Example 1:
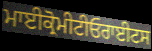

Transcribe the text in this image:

ਮਾਈਕ੍ਰੋਮੀਟੀਓਰਾਈਟਸ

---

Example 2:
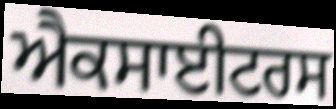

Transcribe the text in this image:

ਐਕਸਾਈਟਰਸ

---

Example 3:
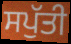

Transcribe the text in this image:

ਸਪੁੱਤੀ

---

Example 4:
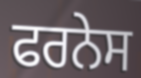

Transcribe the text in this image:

ਫਰਨੇਸ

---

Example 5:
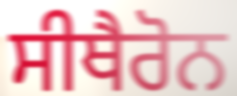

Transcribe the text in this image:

ਸੀਥੈਰੋਨ